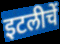
इटलीचें